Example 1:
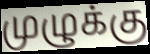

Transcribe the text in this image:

முழுக்கு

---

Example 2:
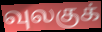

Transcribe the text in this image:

வுலகுக்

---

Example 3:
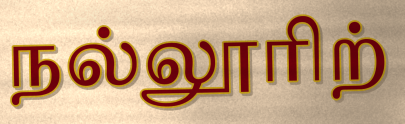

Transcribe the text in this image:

நல்லூரிற்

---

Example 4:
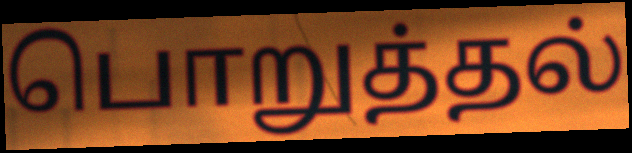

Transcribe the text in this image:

பொறுத்தல்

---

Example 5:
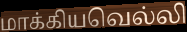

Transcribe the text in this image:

மாக்கியவெல்லி